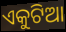
ଏକୁଟିଆ